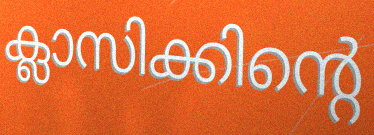
ക്ലാസിക്കിന്റെ